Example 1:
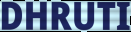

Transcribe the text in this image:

DHRUTI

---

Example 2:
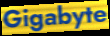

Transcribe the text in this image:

Gigabyte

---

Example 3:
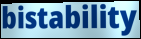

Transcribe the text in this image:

bistability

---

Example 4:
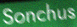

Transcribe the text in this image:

Sonchus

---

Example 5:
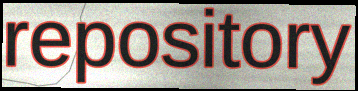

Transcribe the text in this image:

repository